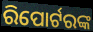
ରିପୋର୍ଟରଙ୍କ